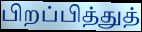
பிறப்பித்துத்